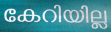
കേറിയില്ല